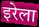
इरेला